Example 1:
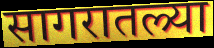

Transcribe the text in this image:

सागरातल्या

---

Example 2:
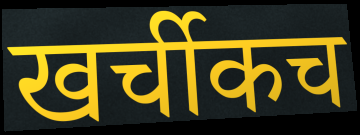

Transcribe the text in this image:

खर्चीकच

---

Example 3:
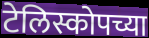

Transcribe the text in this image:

टेलिस्कोपच्या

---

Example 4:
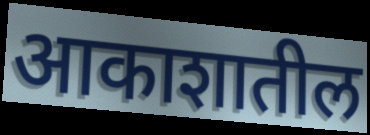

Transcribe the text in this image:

आकाशातील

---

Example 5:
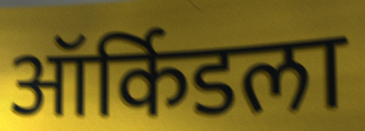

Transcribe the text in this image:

ऑर्किडला